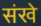
संखे